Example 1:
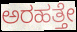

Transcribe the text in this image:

ಅರಹತ್ತೇ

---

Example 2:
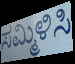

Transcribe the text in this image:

ಸಮ್ಮಿಳಿಸಿ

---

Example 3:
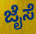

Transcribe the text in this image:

ಜೈಸೆ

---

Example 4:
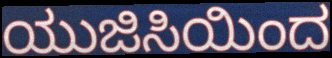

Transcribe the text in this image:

ಯುಜಿಸಿಯಿಂದ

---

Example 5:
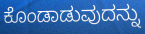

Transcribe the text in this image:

ಕೊಂಡಾಡುವುದನ್ನು